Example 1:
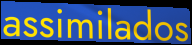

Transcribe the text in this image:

assimilados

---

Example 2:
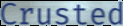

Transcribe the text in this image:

Crusted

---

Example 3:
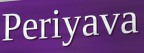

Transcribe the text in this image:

Periyava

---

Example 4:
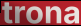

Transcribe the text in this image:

trona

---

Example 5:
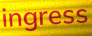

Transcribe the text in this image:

ingress